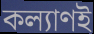
কল্যাণই